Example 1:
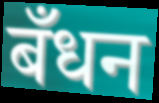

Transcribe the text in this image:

बँधन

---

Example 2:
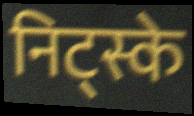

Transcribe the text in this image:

निट्स्के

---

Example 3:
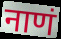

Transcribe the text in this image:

नाणं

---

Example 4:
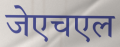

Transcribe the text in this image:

जेएचएल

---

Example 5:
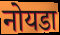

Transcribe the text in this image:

नोयडा